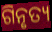
ଗିନୃତ୍ୟ